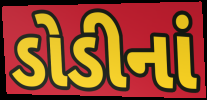
ડોડીનાં